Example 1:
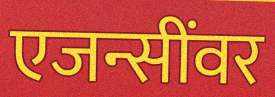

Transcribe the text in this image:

एजन्सींवर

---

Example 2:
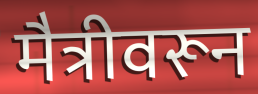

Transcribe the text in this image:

मैत्रीवरून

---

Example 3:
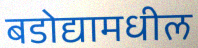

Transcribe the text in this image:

बडोद्यामधील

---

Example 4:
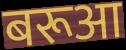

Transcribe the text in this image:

बरूआ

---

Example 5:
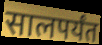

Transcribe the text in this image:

सालपर्यंत